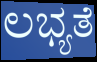
ಲಭ್ಯತೆ